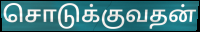
சொடுக்குவதன்